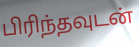
பிரிந்தவுடன்